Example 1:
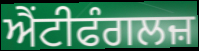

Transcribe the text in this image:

ਐਂਟੀਫੰਗਲਜ਼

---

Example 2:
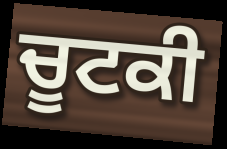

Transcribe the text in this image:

ਚੂਟਕੀ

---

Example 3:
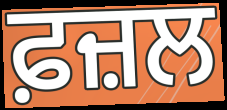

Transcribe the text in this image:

ਫ਼ਜ਼ਲ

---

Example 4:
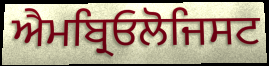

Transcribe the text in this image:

ਐਮਬ੍ਰਿਓਲੋਜਿਸਟ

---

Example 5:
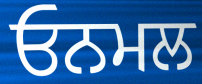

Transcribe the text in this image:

ਓਨਮਲ